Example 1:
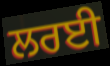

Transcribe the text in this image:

ਲਰਈ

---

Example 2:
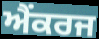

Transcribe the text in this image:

ਐਂਕਰਜ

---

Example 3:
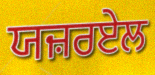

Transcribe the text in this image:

ਯਜ਼ਰਏਲ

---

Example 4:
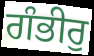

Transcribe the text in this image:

ਗੰਭੀਰੁ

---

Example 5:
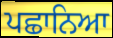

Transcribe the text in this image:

ਪਛਾਨਿਆ